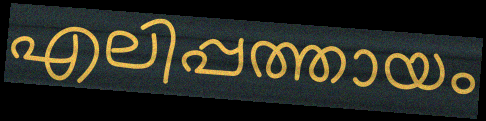
എലിപ്പത്തായം